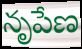
నృపేణ